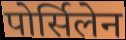
पोर्सिलेन